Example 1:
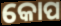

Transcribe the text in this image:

କୋପ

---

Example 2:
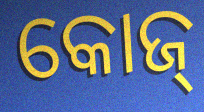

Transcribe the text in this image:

କୋଜ୍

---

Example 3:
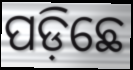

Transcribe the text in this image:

ପଡ଼ିଛେ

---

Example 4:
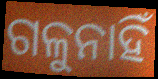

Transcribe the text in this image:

ଗଳୁନାହିଁ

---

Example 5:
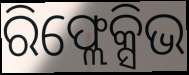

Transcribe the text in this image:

ରିଫ୍ଲେକ୍ସିଭ